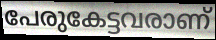
പേരുകേട്ടവരാണ്